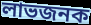
লাভজনক